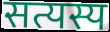
सत्यस्य